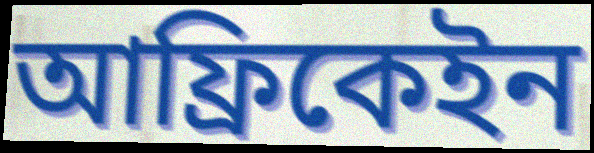
আফ্রিকেইন